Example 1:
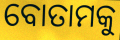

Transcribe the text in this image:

ବୋତାମକୁ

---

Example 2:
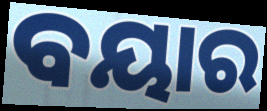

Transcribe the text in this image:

ବୟାର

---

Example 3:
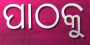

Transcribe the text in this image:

ପାଠକୁ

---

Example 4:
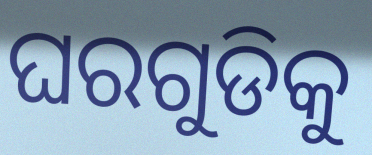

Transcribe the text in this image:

ଘରଗୁଡିକୁ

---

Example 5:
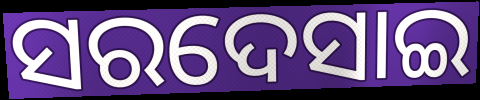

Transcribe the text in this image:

ସରଦେସାଇ